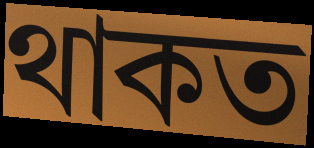
থাকত